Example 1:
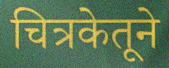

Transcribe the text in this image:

चित्रकेतूने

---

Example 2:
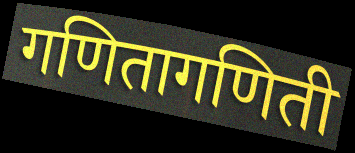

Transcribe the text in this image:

गणितागणिती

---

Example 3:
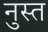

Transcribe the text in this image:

नुस्त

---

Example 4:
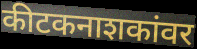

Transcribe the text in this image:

कीटकनाशकांवर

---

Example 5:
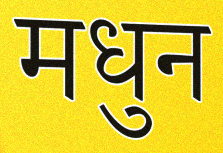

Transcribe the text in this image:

मधुन